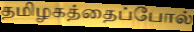
தமிழகத்தைப்போல்